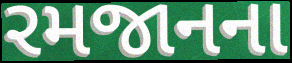
રમજાનના